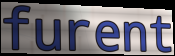
furent